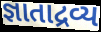
જ્ઞાતાદ્રવ્ય